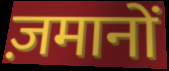
ज़मानों